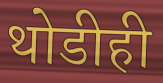
थोडीही